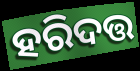
ହରିଦତ୍ତ